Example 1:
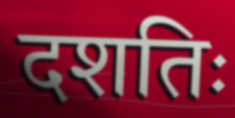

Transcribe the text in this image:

दशतिः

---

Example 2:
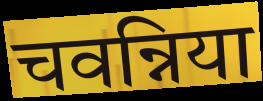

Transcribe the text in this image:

चवन्निया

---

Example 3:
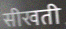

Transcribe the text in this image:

सीखती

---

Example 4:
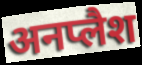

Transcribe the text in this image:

अनप्लैश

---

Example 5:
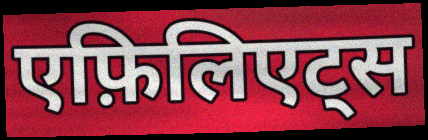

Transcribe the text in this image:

एफ़िलिएट्स